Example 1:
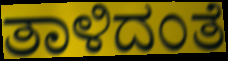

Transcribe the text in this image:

ತಾಳಿದಂತೆ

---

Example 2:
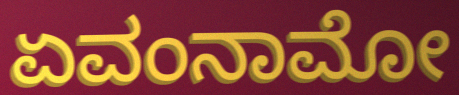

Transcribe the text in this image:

ಏವಂನಾಮೋ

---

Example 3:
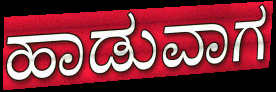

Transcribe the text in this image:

ಹಾಡುವಾಗ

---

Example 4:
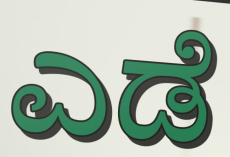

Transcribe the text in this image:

ಎಡೆ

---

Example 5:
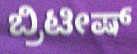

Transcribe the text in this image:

ಬ್ರಿಟೀಷ್